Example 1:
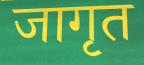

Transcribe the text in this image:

जागृत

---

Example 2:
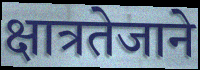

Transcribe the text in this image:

क्षात्रतेजाने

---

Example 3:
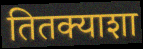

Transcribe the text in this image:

तितक्याशा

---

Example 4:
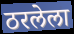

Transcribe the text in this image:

ठरलेला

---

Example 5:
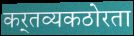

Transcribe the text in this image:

कर्तव्यकठोरता